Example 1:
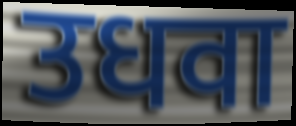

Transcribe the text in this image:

उधवा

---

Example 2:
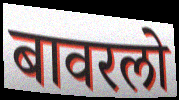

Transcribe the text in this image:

बावरलो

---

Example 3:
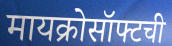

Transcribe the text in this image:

मायक्रोसॉफ्टची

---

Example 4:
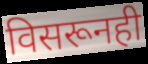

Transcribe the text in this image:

विसरूनही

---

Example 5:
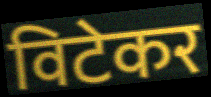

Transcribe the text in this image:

विटेकर